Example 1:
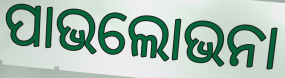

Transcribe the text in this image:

ପାଭଲୋଭନା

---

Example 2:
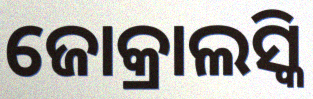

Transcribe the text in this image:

ଜୋକ୍ରାଲସ୍କି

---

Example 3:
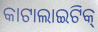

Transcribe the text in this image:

କାଟାଲାଇଟିକ୍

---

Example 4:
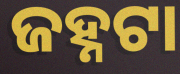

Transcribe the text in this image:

ଜହ୍ନଟା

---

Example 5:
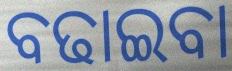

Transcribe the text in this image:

ବଢାଇବା